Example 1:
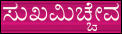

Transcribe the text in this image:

ಸುಖಮಿಚ್ಚೇವ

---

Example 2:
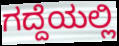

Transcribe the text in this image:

ಗದ್ದೆಯಲ್ಲಿ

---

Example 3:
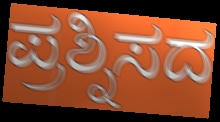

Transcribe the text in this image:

ಪ್ರಶ್ನಿಸದ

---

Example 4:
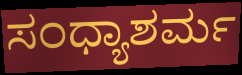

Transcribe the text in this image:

ಸಂಧ್ಯಾಶರ್ಮ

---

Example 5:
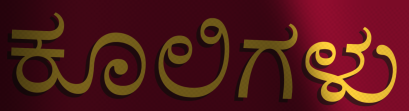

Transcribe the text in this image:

ಕೂಲಿಗಳು